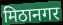
मिठानगर